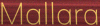
Mallara